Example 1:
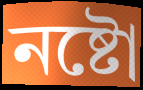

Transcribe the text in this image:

নষ্টো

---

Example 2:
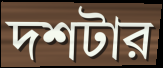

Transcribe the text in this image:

দশটার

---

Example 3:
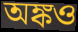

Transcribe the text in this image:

অঙ্কও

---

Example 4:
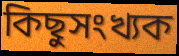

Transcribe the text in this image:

কিছুসংখ্যক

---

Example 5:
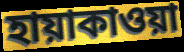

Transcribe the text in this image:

হায়াকাওয়া